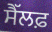
ਸੈੱਲਫ਼